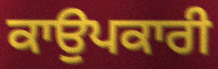
ਕਾਉਪਕਾਰੀ